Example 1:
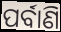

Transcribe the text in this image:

ପର୍ବାଣି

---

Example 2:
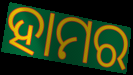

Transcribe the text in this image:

ହାମର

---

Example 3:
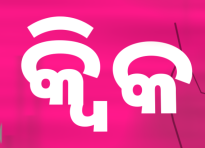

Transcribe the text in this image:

କ୍ୱିକ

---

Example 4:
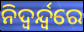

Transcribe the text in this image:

ନିଦ୍ଵର୍ନ୍ଦ୍ୱରେ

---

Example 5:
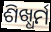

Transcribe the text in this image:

ଶିଖ୍ଧର୍ମ